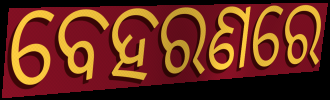
ବେହରଣରେ